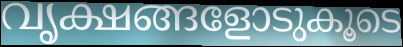
വൃക്ഷങ്ങളോടുകൂടെ